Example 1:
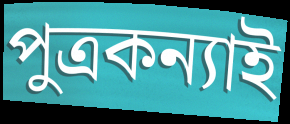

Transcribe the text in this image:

পুত্রকন্যাই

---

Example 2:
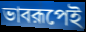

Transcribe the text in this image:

ভাবরূপেই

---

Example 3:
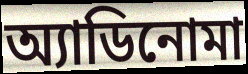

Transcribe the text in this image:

অ্যাডিনোমা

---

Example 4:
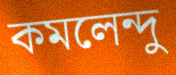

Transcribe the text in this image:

কমলেন্দু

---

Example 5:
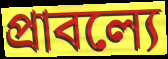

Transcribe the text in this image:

প্রাবল্যে